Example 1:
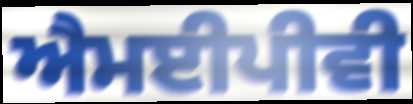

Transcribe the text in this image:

ਐਮਈਪੀਵੀ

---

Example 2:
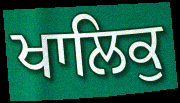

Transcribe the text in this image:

ਖਾਲਿਕੁ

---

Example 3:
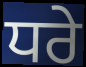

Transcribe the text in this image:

ਧਰੇ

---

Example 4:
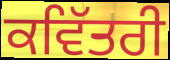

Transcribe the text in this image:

ਕਵਿੱਤਰੀ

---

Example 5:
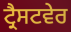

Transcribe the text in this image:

ਟ੍ਰੈਸਟਵੇਰ